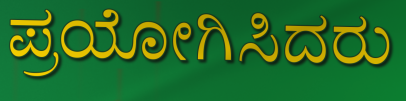
ಪ್ರಯೋಗಿಸಿದರು